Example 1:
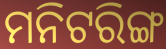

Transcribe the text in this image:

ମନିଟରିଙ୍ଗ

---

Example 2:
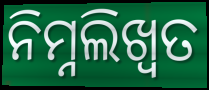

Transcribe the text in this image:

ନିମ୍ନଲିଖ୍ବତ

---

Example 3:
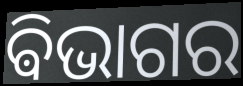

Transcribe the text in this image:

ଵିଭାଗର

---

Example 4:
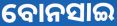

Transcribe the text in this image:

ବୋନସାଇ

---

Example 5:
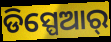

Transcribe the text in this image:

ଡିସ୍ପେଆର୍